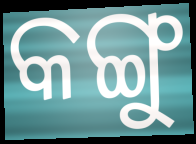
କଙ୍ଗୁ